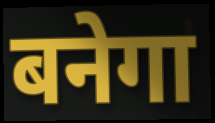
बनेगा